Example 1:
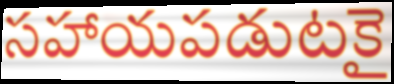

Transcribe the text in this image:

సహాయపడుటకై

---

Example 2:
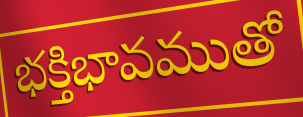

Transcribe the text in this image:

భక్తిభావముతో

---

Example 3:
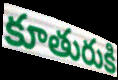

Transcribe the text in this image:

కూతురుకి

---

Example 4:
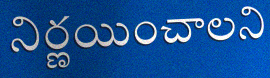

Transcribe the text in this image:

నిర్ణయించాలని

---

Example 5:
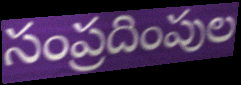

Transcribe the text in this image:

సంప్రదింపుల